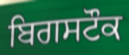
ਬਿਗਸਟੌਕ